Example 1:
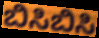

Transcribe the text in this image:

ಬಿಸಿಬಿಸಿ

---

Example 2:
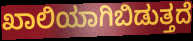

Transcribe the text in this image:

ಖಾಲಿಯಾಗಿಬಿಡುತ್ತದೆ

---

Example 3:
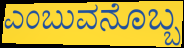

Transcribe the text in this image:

ಎಂಬುವನೊಬ್ಬ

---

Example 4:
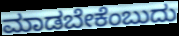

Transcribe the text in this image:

ಮಾಡಬೇಕೆಂಬುದು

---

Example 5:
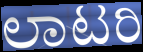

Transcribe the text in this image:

ಲಾಟರಿ